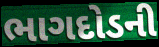
ભાગદોડની